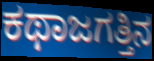
ಕಥಾಜಗತ್ತಿನ